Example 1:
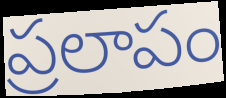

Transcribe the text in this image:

ప్రలాపం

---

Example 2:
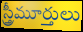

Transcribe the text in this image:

స్త్రీమూర్తులు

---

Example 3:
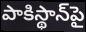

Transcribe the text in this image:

పాకిస్థాన్‌పై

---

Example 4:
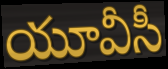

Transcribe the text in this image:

యూవీసీ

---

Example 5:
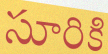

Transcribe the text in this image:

సూరికి